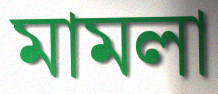
মামলা